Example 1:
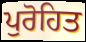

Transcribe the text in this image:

ਪੁਰੋਹਿਤ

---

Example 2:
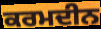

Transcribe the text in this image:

ਕਰਮਦੀਨ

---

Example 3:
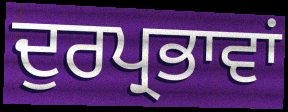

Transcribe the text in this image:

ਦੁਰਪ੍ਰਭਾਵਾਂ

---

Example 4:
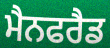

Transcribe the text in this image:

ਮੈਨਫਰੈਡ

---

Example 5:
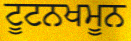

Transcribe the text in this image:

ਟੂਟਨਖਮੂਨ